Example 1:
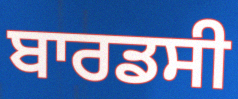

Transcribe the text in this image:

ਬਾਰਡਸੀ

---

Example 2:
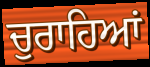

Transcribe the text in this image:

ਚੁਰਾਹਿਆਂ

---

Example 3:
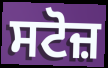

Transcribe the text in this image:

ਸਟੋਜ਼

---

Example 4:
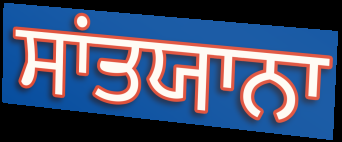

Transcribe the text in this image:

ਸਾਂਤਯਾਨਾ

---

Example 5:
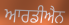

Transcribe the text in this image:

ਆਰਡੀਐਨ